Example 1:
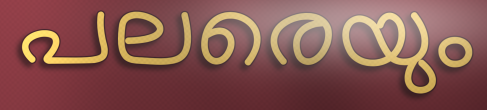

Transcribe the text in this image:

പലരെയും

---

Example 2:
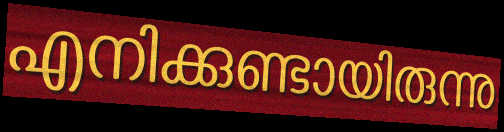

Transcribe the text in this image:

എനിക്കുണ്ടായിരുന്നു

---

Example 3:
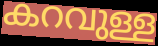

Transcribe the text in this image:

കറവുള്ള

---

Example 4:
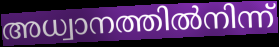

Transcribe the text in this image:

അധ്വാനത്തിൽനിന്ന്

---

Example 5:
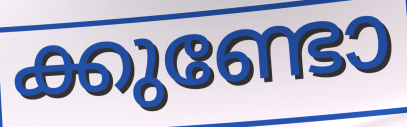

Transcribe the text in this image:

ക്കുണ്ടോ